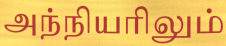
அந்நியரிலும்